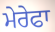
ਮੇਰੇਫਾ